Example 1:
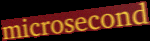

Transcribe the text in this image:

microsecond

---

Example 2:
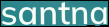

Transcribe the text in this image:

santna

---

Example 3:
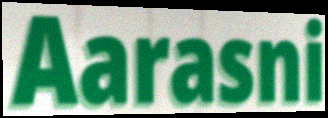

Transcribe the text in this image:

Aarasni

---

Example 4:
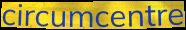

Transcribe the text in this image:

circumcentre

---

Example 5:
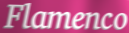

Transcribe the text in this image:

Flamenco